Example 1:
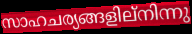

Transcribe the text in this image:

സാഹചര്യങ്ങളില്നിന്നു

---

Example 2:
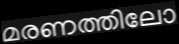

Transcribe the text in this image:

മരണത്തിലോ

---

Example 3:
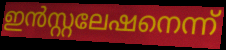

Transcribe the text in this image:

ഇൻസ്റ്റലേഷനെന്ന്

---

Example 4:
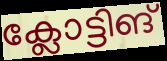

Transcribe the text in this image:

ക്ലോട്ടിങ്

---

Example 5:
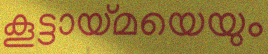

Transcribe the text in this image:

കൂട്ടായ്മയെയും